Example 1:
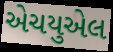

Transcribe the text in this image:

એચયુએલ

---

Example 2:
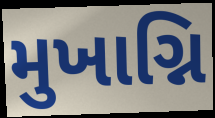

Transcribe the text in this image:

મુખાગ્નિ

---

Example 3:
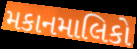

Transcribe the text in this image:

મકાનમાલિકો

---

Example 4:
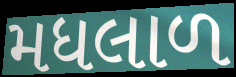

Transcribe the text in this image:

મધલાળ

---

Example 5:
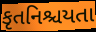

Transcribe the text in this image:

કૃતનિશ્ચયતા